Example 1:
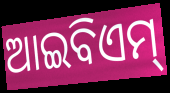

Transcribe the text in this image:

ଆଇବିଏମ୍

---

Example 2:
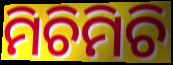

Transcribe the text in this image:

ମିଚିମିଚି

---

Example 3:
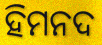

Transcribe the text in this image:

ହିମନଦ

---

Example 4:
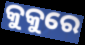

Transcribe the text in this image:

କୁକୁରେ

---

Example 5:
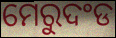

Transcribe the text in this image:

ମେରୁଦଂଡ